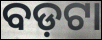
ବଡ଼ଟା